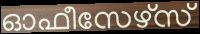
ഓഫീസേഴ്സ്